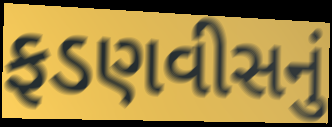
ફડણવીસનું